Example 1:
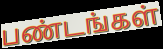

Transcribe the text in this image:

பண்டங்கள்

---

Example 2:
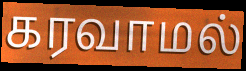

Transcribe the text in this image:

கரவாமல்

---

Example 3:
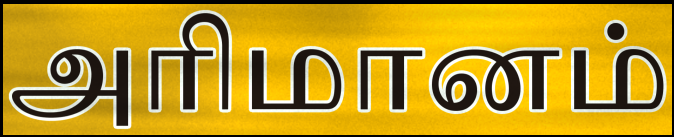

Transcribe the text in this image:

அரிமானம்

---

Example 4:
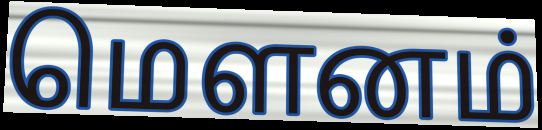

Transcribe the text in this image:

மெளனம்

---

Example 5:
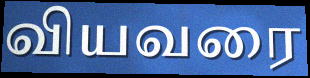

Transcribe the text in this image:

வியவரை